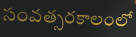
సంవత్సరకాలంలో